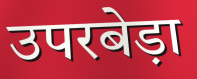
उपरबेड़ा